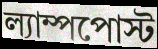
ল্যাম্পপোস্ট